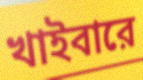
খাইবারে